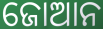
ଜୋଆନ